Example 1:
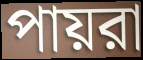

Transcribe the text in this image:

পায়রা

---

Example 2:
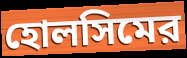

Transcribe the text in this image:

হোলসিমের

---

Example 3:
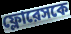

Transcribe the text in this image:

ফ্লোরেসকে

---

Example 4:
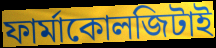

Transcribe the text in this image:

ফার্মাকোলজিটাই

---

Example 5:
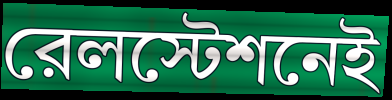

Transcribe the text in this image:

রেলস্টেশনেই